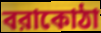
বরাকোঠা